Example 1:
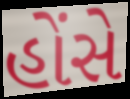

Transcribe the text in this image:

હોંસે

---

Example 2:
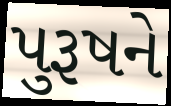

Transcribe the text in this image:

પુરૂષને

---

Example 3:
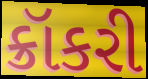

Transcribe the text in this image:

ક્રૉકરી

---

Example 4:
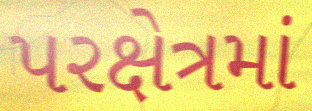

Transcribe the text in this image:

પરક્ષેત્રમાં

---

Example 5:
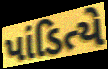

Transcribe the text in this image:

પાંડિત્યે